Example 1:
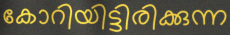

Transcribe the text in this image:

കോറിയിട്ടിരിക്കുന്ന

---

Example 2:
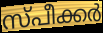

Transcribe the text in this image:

സ്പീക്കർ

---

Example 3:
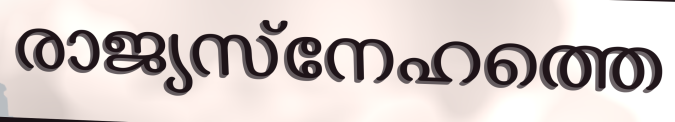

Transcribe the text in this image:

രാജ്യസ്‌നേഹത്തെ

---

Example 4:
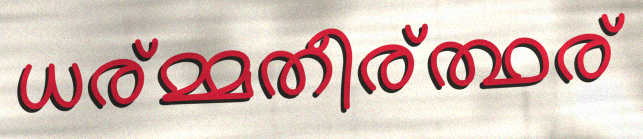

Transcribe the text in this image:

ധര്മ്മതീര്ത്ഥര്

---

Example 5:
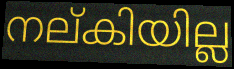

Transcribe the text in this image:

നല്കിയില്ല